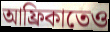
আফ্রিকাতেও